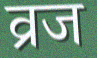
व्रज